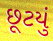
છૂટયું